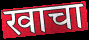
खाचा